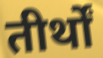
तीर्थों